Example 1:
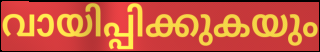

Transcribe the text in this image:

വായിപ്പിക്കുകയും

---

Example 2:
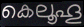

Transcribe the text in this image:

കെലൂഹൂ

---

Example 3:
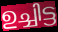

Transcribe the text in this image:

ഉച്ചിട്ട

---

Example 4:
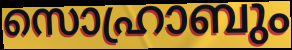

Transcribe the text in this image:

സൊഹ്രാബും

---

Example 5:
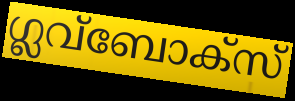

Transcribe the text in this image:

ഗ്ലവ്ബോക്സ്